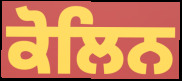
ਕੋਲਿਨ